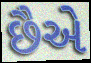
છૈએ